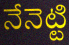
నేనెట్టి